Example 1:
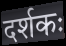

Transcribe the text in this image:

दर्शकः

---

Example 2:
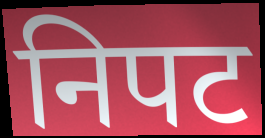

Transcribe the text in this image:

निपट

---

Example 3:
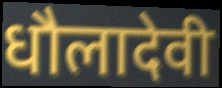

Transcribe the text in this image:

धौलादेवी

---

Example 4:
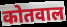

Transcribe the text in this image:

कोतवाल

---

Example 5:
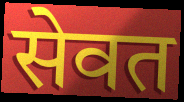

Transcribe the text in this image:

सेवत